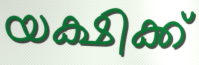
യക്ഷിക്ക്